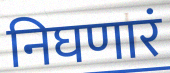
निघणारं